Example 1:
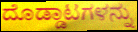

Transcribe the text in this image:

ದೊಡ್ಡಾಟಗಳನ್ನು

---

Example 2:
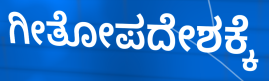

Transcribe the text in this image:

ಗೀತೋಪದೇಶಕ್ಕೆ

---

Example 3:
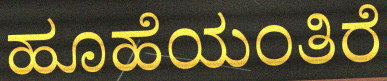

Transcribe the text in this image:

ಹೂಹೆಯಂತಿರೆ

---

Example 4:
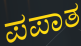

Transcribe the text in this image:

ಪಪಾತ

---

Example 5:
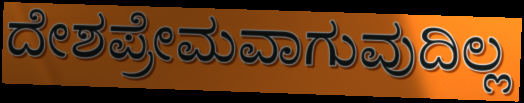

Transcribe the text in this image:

ದೇಶಪ್ರೇಮವಾಗುವುದಿಲ್ಲ